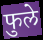
फुले